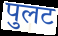
पुलट